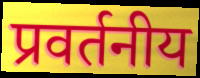
प्रवर्तनीय